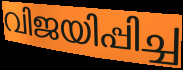
വിജയിപ്പിച്ച